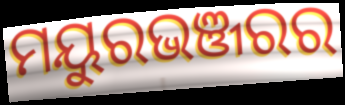
ମୟୁରଭଞ୍ଜରର